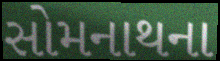
સોમનાથના